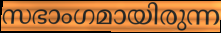
സഭാംഗമായിരുന്ന